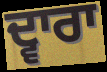
ਦ੍ਵਾਰਾ